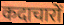
कदाचारों